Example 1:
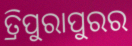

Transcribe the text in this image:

ତ୍ରିପୁରାପୁରର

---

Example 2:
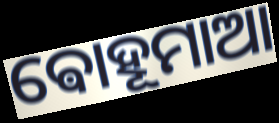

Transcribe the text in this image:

ଵୋହୂମାଆ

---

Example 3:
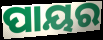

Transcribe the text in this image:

ପାୟର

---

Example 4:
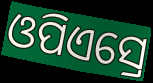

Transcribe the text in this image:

ଓପିଏସ୍ରେ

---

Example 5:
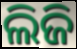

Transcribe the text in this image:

ଲିଜି